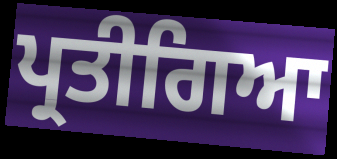
ਪ੍ਰਤੀਗਿਆ